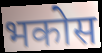
भकोस